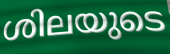
ശിലയുടെ